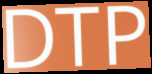
DTP